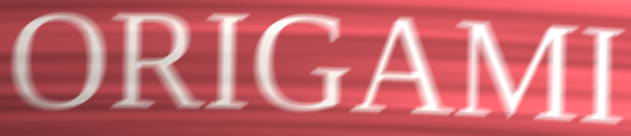
ORIGAMI